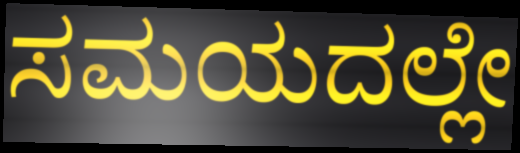
ಸಮಯದಲ್ಲೇ